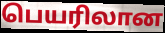
பெயரிலான